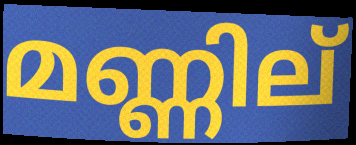
മണ്ണില്